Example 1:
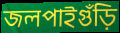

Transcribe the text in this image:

জলপাইগুঁড়ি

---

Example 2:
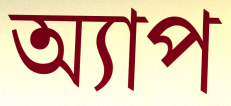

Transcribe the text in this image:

অ্যাপ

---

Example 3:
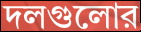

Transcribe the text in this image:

দলগুলোর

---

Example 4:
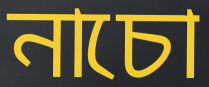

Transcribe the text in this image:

নাচো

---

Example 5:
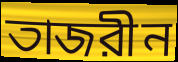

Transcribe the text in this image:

তাজরীন